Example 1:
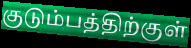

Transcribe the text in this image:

குடும்பத்திற்குள்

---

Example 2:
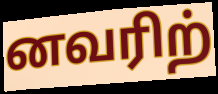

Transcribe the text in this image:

னவரிற்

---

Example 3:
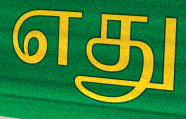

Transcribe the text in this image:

எது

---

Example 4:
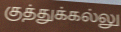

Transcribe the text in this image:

குத்துக்கல்லு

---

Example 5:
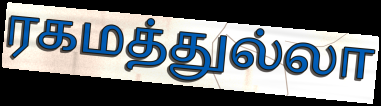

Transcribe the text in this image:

ரகமத்துல்லா